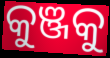
କୁଞ୍ଜକୁ